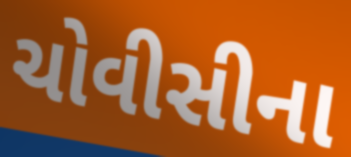
ચોવીસીના